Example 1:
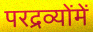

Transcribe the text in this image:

परद्रव्योंमें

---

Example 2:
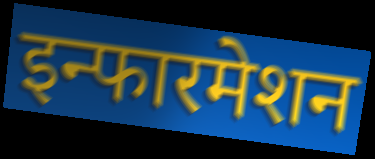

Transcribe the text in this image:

इन्फारमेशन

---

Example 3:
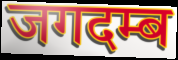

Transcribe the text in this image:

जगदम्ब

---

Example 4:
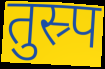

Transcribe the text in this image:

तुस्र्प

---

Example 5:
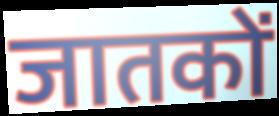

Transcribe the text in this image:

जातकों